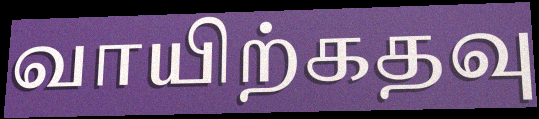
வாயிற்கதவு